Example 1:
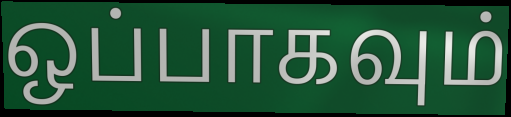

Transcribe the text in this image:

ஒப்பாகவும்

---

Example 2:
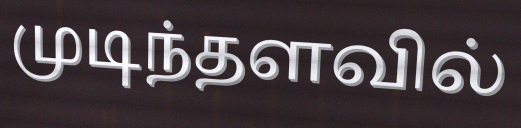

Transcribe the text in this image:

முடிந்தளவில்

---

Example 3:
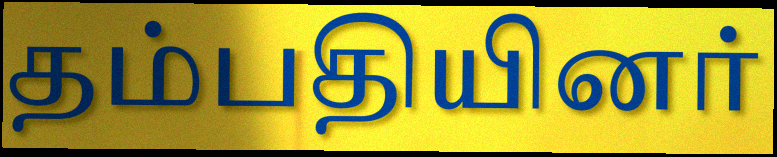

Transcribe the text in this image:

தம்பதியினர்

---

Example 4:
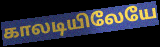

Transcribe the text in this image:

காலடியிலேயே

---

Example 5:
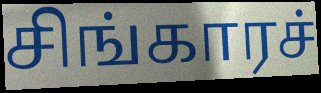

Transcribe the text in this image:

சிங்காரச்